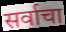
सर्वाचा